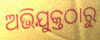
ଅଭିଯୁକ୍ତଠାରୁ